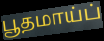
பூதமாய்ப்